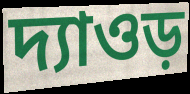
দ্যাওড়